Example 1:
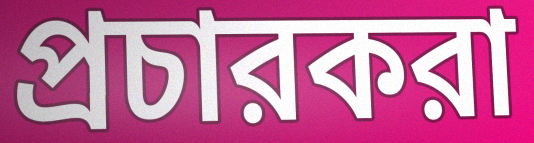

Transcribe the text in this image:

প্রচারকরা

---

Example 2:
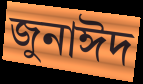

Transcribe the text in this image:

জুনাঈদ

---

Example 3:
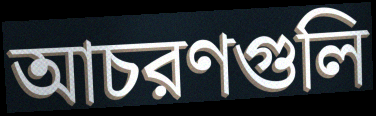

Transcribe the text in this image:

আচরণগুলি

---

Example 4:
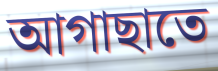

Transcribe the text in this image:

আগাছাতে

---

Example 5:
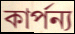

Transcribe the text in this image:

কার্পন্য